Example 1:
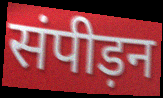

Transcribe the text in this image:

संपीड़न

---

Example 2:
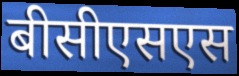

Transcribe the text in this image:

बीसीएसएस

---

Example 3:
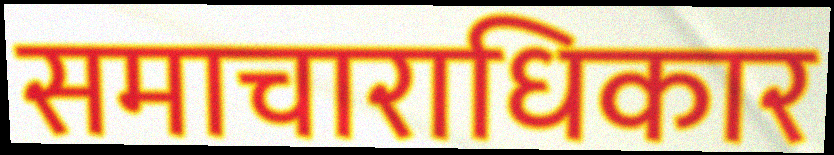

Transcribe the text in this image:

समाचाराधिकार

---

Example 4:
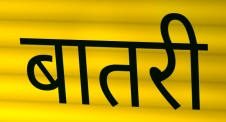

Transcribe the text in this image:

बातरी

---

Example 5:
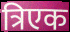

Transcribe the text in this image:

त्रिएक